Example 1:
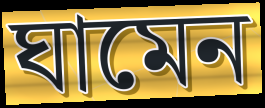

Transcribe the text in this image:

ঘামেন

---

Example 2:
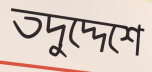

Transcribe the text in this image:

তদুদ্দেশে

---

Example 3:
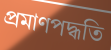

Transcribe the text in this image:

প্রমাণপদ্ধতি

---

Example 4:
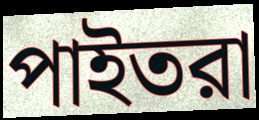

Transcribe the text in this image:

পাইতরা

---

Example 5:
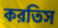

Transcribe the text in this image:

করতিস